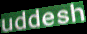
uddesh